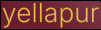
yellapur